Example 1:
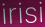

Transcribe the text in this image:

irisi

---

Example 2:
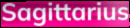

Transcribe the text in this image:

Sagittarius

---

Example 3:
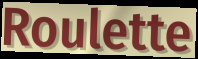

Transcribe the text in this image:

Roulette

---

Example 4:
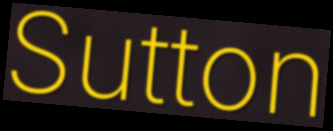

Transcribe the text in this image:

Sutton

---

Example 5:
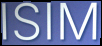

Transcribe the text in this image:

ISIM